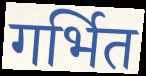
गर्भित